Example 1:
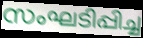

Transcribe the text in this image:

സംഘടിപ്പിച്ച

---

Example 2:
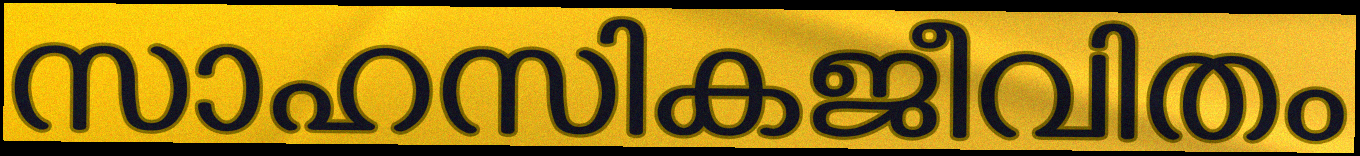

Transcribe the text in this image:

സാഹസികജീവിതം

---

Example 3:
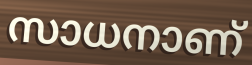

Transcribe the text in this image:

സാധനാണ്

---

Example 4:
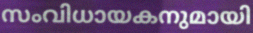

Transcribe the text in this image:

സംവിധായകനുമായി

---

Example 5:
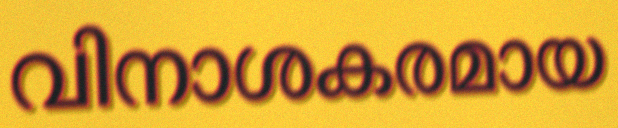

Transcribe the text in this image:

വിനാശകരമായ